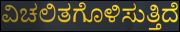
ವಿಚಲಿತಗೊಳಿಸುತ್ತಿದೆ